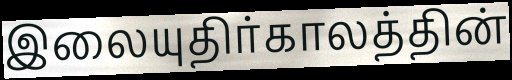
இலையுதிர்காலத்தின்